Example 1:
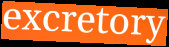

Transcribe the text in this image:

excretory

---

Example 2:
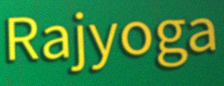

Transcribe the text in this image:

Rajyoga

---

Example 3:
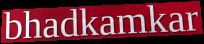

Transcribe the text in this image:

bhadkamkar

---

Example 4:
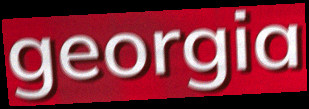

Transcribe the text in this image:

georgia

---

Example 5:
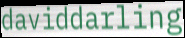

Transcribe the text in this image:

daviddarling